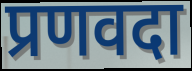
प्रणवदा